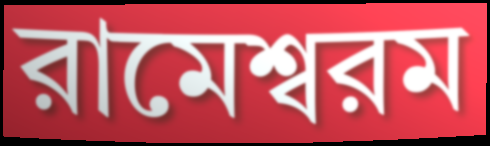
রামেশ্বরম